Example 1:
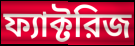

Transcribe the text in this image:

ফ্যাক্টরিজ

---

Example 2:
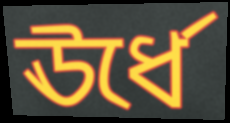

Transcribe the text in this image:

ঊর্ধে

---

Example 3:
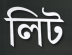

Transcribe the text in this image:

লিট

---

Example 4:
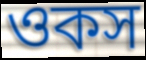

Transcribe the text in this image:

ওকস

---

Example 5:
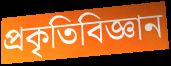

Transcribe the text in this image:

প্রকৃতিবিজ্ঞান